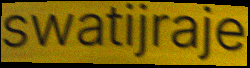
swatijraje